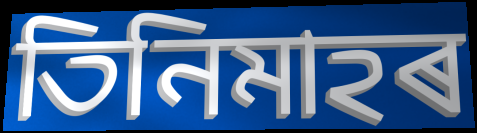
তিনিমাহৰ